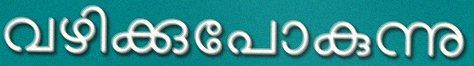
വഴിക്കുപോകുന്നു